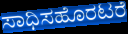
ಸಾಧಿಸಹೊರಟರೆ